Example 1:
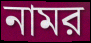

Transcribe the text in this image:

নামর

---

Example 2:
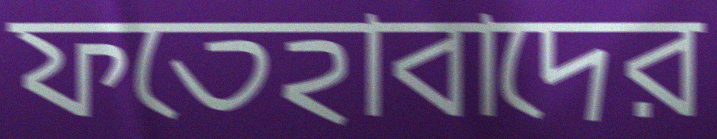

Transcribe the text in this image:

ফতেহাবাদের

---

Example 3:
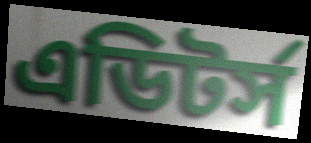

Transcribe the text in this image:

এডিটর্স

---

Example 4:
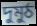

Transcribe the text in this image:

দুমুঠ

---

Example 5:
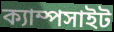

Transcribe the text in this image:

ক্যাম্পসাইট